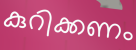
കുറിക്കണം